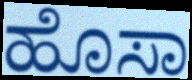
ಹೊಸಾ